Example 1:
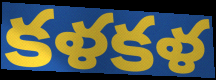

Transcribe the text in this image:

కళకళ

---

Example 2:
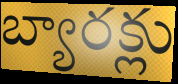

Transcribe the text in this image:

బ్యారక్లు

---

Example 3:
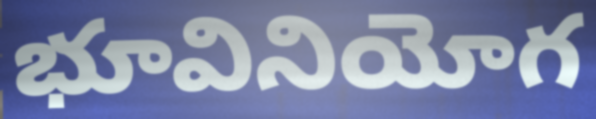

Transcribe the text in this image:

భూవినియోగ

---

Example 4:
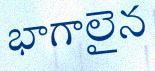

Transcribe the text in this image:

భాగాలైన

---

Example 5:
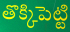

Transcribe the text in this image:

తొక్కిపెట్టి